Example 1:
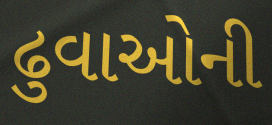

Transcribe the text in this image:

ઢુવાઓની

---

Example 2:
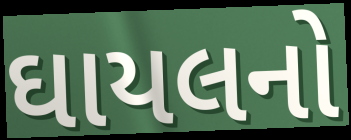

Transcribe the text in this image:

ઘાયલનો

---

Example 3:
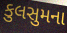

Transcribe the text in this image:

કુલસુમના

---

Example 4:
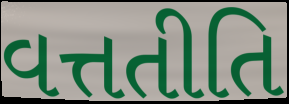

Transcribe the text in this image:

વત્તતીતિ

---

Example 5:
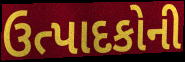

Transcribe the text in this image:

ઉત્પાદકોની